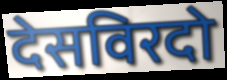
देसविरदो